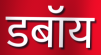
डबॉय